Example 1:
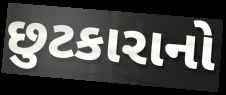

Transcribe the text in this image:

છુટકારાનો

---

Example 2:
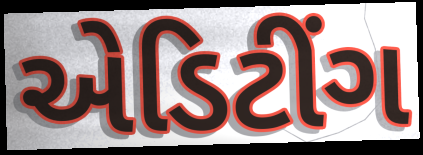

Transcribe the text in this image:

એડિટીંગ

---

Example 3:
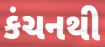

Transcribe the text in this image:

કંચનથી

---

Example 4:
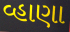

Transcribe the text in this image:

વ્હાણા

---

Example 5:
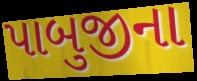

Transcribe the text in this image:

પાબુજીના